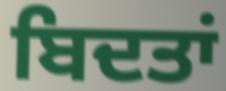
ਬਿਦਤਾਂ